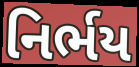
નિર્ભય